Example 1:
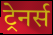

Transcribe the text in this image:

ट्रेनर्स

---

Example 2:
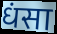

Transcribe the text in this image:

धंसा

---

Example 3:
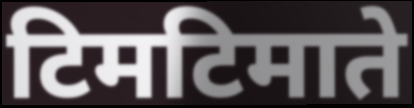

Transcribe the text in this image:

टिमटिमाते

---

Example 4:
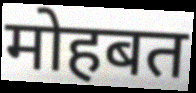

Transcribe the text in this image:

मोहबत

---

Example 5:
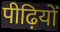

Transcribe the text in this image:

पीढ़ियों